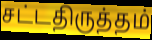
சட்டதிருத்தம்